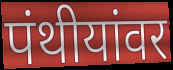
पंथीयांवर